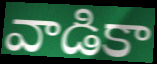
వాడికా